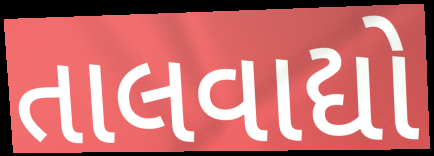
તાલવાદ્યો